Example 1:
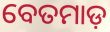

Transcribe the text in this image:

ବେତମାଡ଼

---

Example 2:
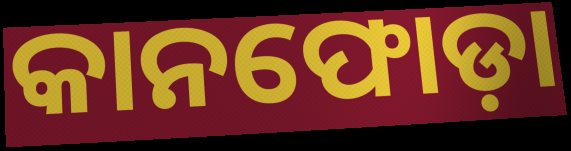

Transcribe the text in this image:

କାନଫୋଡ଼ା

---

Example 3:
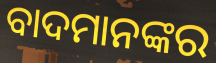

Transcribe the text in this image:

ବାଦମାନଙ୍କର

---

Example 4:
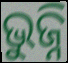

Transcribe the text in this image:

ଭୁଜ୍ନି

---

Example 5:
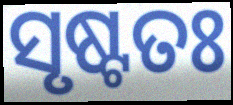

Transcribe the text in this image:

ସୃଷ୍ଟତଃ